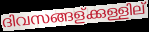
ദിവസങ്ങള്ക്കുള്ളില്